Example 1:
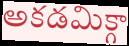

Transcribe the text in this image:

అకడమిక్గా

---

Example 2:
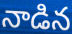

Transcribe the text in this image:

నాడిన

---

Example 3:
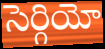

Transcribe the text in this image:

సెర్గియో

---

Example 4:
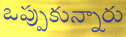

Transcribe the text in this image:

ఒప్పుకున్నారు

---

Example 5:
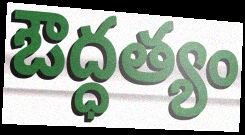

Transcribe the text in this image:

ఔద్ధత్యం